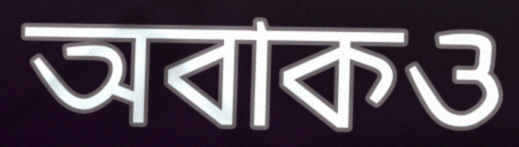
অবাকও